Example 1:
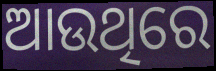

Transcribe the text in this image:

ଆଉଥିରେ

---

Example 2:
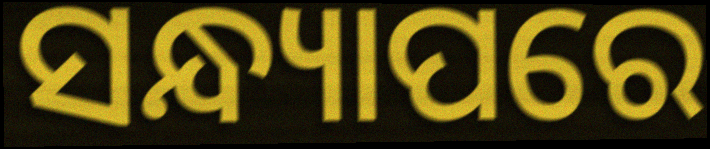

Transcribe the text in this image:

ସନ୍ଧ୍ୟାପରେ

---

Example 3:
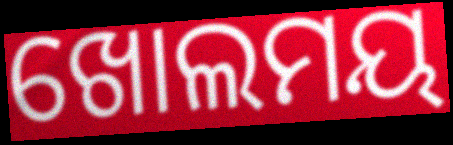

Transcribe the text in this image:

ଖୋଲମୟ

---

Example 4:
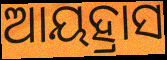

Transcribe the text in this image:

ଆୟହ୍ରାସ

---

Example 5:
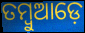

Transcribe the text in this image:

ତମ୍ବୁଆଡ଼େ